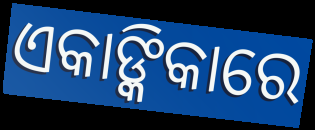
ଏକାଙ୍କିକାରେ